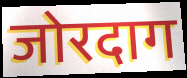
जोरदाग